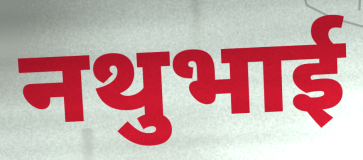
नथुभाई